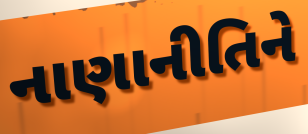
નાણાનીતિને